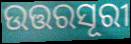
ଉତ୍ତରସୂରୀ